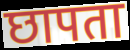
छापता